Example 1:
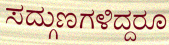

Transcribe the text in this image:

ಸದ್ಗುಣಗಳಿದ್ದರೂ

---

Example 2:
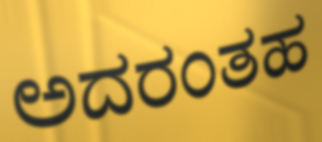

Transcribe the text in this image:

ಅದರಂತಹ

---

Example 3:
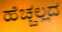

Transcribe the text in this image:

ಹೆಚ್ಚಲ್ಲದ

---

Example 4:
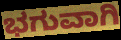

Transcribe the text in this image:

ಭಗುವಾಗಿ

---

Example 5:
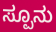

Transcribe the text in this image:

ಸ್ಪೂನು